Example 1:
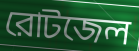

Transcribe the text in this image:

রোটজেল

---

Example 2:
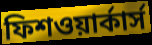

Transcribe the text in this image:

ফিশওয়ার্কার্স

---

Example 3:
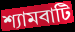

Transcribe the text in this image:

শ্যামবাটি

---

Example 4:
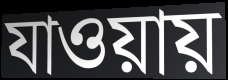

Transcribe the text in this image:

যাওয়ায়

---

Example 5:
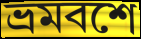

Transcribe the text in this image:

ভ্রমবশে